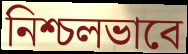
নিশ্চলভাবে